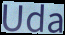
Uda